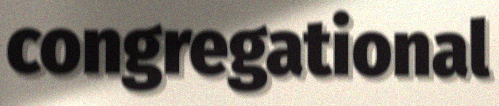
congregational